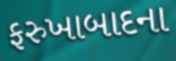
ફરુખાબાદના